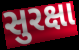
સુરક્ષા